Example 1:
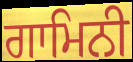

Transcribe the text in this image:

ਗਾਮਿਨੀ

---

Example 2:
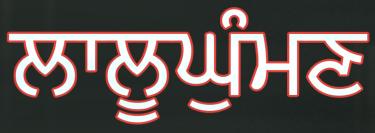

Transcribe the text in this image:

ਲਾਲੂਘੁੰਮਣ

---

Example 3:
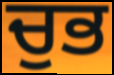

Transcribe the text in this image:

ਚੁਭ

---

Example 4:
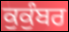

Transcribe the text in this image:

ਕੁਕੁੰਬਰ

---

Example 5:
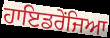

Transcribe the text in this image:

ਹਾਇਡਰੇਂਜਿਆ